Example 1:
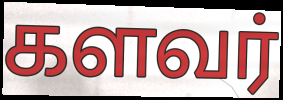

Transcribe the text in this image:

களவர்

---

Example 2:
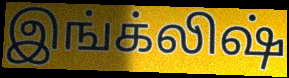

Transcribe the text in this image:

இங்க்லிஷ்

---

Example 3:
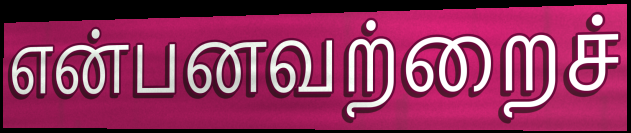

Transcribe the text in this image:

என்பனவற்றைச்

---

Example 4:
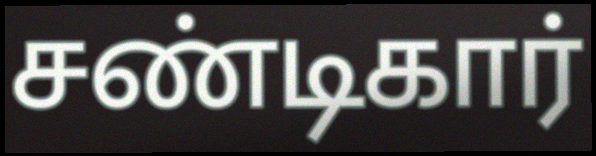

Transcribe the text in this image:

சண்டிகார்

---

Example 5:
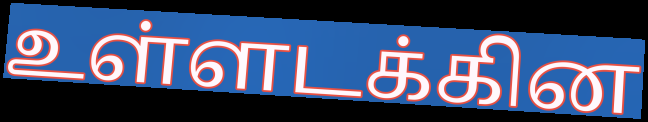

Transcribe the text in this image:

உள்ளடக்கின